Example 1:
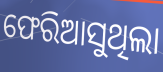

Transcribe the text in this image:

ଫେରିଆସୁଥିଲା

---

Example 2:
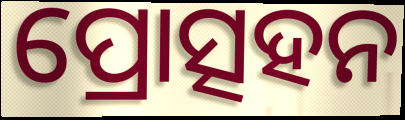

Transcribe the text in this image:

ପ୍ରୋତ୍ସହନ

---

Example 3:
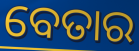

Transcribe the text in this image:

ବେତାର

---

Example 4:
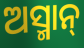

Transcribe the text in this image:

ଅସ୍ମାନ୍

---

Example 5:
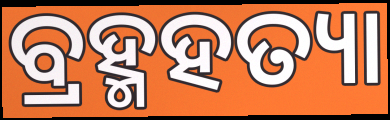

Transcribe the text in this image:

ବ୍ରହ୍ମହତ୍ୟା